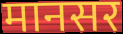
मानसर